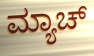
ಮ್ಯಾಚ್